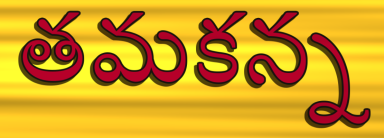
తమకన్న